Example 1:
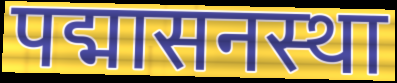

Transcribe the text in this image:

पद्मासनस्था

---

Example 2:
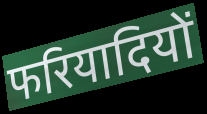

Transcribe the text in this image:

फरियादियों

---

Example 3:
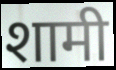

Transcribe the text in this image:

शामी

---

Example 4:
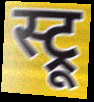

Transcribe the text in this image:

स्ट्रू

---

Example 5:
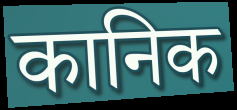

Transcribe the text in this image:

कानिक